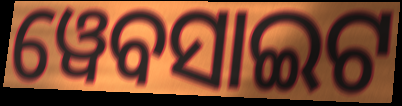
ୱେବସାଇଟ